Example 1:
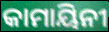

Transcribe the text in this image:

କାମାୟିନୀ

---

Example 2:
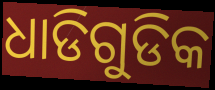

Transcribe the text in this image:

ଧାଡିଗୁଡିକ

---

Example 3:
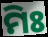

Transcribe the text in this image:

ମିଃ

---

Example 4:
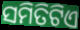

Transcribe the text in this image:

ସମିତିଟିଏ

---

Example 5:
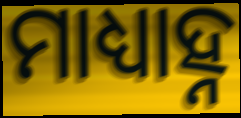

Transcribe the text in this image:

ମାଧ୍ୟାହ୍ନ